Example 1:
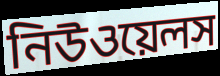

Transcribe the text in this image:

নিউওয়েলস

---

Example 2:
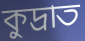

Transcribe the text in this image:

কুদ্রাত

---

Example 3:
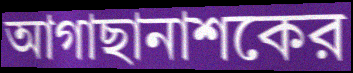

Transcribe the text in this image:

আগাছানাশকের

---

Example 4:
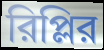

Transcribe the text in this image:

রিপ্লির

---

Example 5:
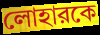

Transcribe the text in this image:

লোহারকে